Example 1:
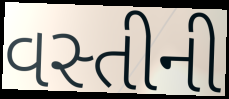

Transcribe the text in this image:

વસ્તીની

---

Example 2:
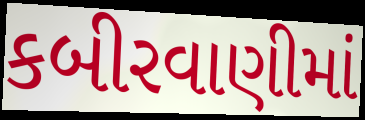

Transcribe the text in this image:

કબીરવાણીમાં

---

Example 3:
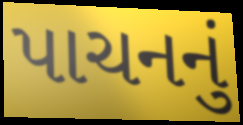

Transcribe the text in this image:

પાચનનું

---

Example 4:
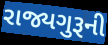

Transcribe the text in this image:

રાજ્યગુરૂની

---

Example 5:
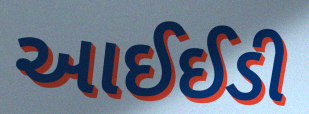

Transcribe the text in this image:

આઈઈડી